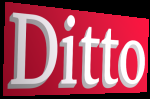
Ditto